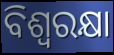
ବିଶ୍ୱରକ୍ଷା